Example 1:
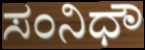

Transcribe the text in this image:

ಸಂನಿಧೌ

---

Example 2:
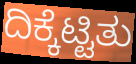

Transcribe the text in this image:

ದಿಕ್ಕೆಟ್ಟಿತು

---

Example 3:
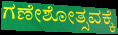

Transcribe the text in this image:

ಗಣೇಶೋತ್ಸವಕ್ಕೆ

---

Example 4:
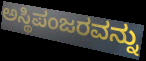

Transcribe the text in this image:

ಅಸ್ಥಿಪಂಜರವನ್ನು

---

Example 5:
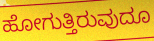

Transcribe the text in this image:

ಹೋಗುತ್ತಿರುವುದೂ